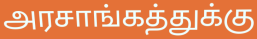
அரசாங்கத்துக்கு